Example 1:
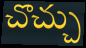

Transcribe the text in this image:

చొచ్చు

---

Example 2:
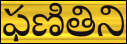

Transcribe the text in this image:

ఫణితిని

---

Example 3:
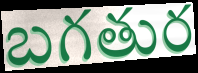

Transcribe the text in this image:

బగతుర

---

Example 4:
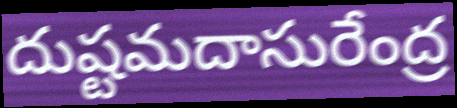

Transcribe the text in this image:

దుష్టమదాసురేంద్ర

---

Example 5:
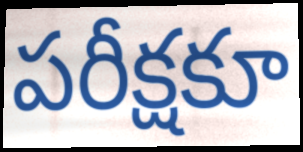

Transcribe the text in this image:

పరీక్షకూ